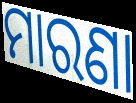
ମାରଣା